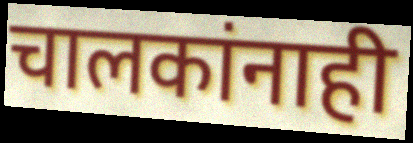
चालकांनाही